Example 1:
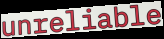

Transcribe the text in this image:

unreliable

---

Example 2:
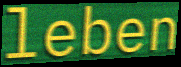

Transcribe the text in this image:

leben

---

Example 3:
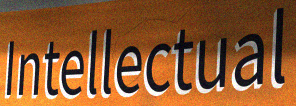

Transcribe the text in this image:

Intellectual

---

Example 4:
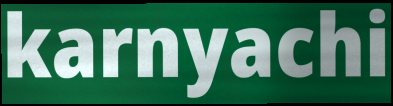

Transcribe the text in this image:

karnyachi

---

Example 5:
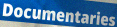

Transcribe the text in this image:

Documentaries